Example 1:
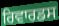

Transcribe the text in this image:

ਰਿਵਾਰਡਸ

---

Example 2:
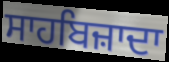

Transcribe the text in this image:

ਸਾਹਬਿਜ਼ਾਦਾ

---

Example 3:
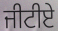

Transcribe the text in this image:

ਜੀਟੀਏ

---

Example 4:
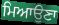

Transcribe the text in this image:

ਮਿਆਉਣਾ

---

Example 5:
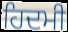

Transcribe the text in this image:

ਹਿਦਮੀ